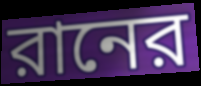
রানের